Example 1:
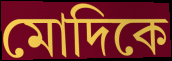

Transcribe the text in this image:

মোদিকে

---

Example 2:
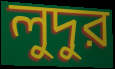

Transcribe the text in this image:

লুদুর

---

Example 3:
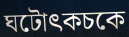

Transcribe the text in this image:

ঘটোৎকচকে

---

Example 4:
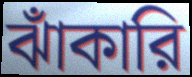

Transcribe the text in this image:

ঝাঁকারি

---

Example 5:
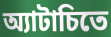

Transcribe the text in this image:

অ্যাটাচিতে